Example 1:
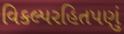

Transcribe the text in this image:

વિકલ્પરહિતપણું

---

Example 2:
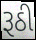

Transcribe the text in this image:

રૂઠી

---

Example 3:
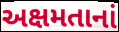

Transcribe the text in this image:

અક્ષમતાનાં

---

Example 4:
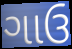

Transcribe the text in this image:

ગાઉ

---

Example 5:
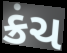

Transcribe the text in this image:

ક્રંચ